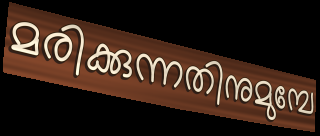
മരിക്കുന്നതിനുമുമ്പേ